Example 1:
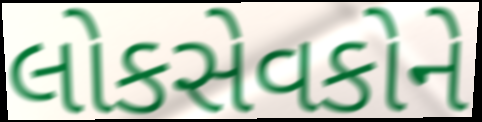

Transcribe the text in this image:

લોકસેવકોને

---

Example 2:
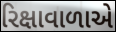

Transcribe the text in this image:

રિક્ષાવાળાએ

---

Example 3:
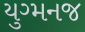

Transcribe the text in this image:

યુગ્મનજ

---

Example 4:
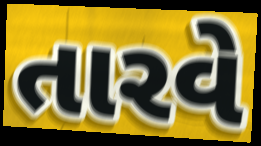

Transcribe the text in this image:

તારવે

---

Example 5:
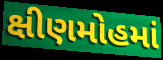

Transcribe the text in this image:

ક્ષીણમોહમાં